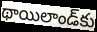
థాయిలాండ్‌కు